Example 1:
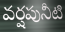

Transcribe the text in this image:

వర్షపునీటి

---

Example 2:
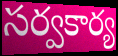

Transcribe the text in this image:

సర్వకార్య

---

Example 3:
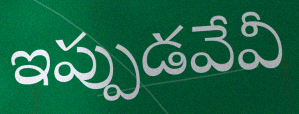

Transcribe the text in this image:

ఇప్పుడవేవీ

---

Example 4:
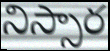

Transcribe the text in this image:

నిస్సార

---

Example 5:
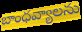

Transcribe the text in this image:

బాంధవ్యాలను